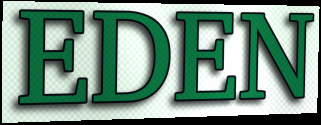
EDEN